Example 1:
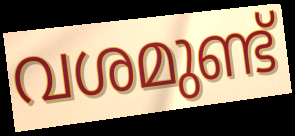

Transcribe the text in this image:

വശമുണ്ട്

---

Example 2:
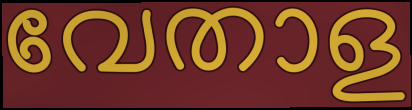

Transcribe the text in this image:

വേതാള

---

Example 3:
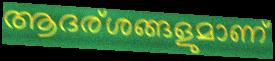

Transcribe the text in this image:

ആദര്ശങ്ങളുമാണ്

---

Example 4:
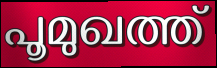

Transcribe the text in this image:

പൂമുഖത്ത്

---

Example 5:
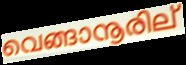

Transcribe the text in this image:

വെങ്ങാനൂരില്